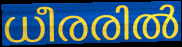
ധീരരിൽ